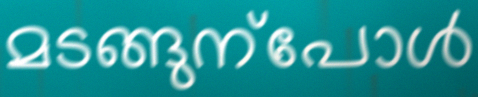
മടങ്ങുന്പോൾ